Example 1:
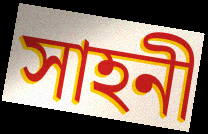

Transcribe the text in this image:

সাহনী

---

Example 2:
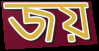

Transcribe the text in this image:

জয়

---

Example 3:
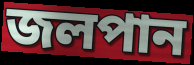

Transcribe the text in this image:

জলপান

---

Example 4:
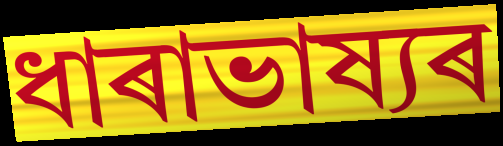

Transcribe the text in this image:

ধাৰাভাষ্যৰ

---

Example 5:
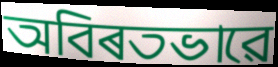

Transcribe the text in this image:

অবিৰতভাৱে